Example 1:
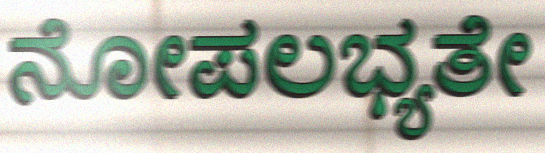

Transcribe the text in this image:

ನೋಪಲಭ್ಯತೇ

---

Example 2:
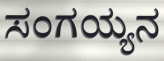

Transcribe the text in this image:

ಸಂಗಯ್ಯನ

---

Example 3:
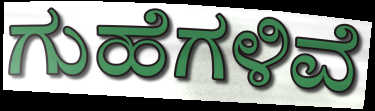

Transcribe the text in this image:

ಗುಹೆಗಳಿವೆ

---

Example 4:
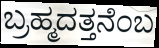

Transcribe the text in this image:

ಬ್ರಹ್ಮದತ್ತನೆಂಬ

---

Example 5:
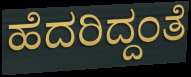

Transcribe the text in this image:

ಹೆದರಿದ್ದಂತೆ